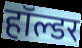
हॉल्डर